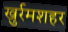
खुर्रमशहर